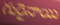
గురైనాయి